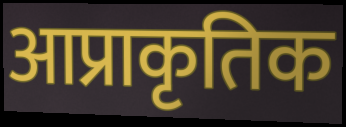
आप्राकृतिक